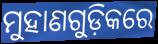
ମୁହାଣଗୁଡ଼ିକରେ